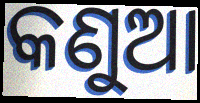
କଣୁଆ